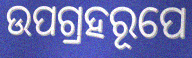
ଉପଗ୍ରହରୂପେ